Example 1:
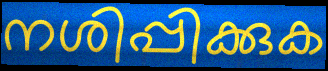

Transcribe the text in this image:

നശിപ്പിക്കുക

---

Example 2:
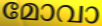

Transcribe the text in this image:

മോവാ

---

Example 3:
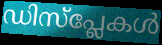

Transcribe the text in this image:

ഡിസ്പ്ലേകൾ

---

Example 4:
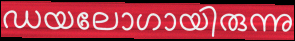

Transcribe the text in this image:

ഡയലോഗായിരുന്നു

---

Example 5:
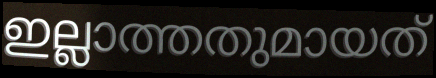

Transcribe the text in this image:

ഇല്ലാത്തതുമായത്